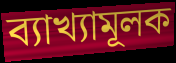
ব্যাখ্যামূলক